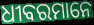
ଧୀବରମାନେ